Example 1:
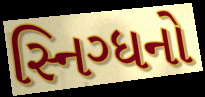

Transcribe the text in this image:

સ્નિગ્ધનો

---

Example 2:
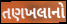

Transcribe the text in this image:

તણખલાનો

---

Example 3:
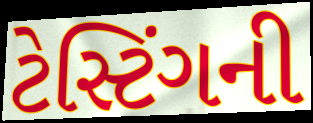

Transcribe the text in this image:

ટેસ્ટિંગની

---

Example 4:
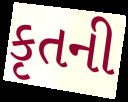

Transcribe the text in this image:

કૃતની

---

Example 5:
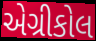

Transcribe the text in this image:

એગ્રીકોલ